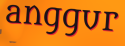
anggur